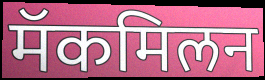
मॅकमिलन